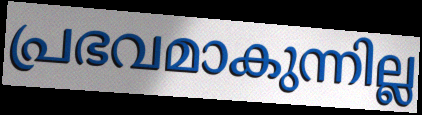
പ്രഭവമാകുന്നില്ല